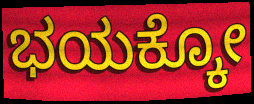
ಭಯಕ್ಕೋ